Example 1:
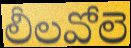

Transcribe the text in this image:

లీలవోలె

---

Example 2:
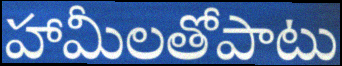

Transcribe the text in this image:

హామీలతోపాటు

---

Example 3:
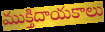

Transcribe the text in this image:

ముక్తిదాయకాలు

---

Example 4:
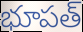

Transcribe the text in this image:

భూపత్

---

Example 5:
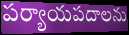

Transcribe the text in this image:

పర్యాయపదాలను